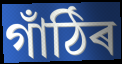
গাঁঠিৰ